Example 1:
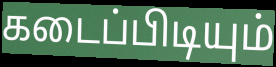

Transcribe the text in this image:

கடைப்பிடியும்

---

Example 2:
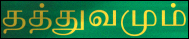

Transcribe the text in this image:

தத்துவமும்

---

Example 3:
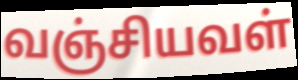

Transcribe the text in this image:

வஞ்சியவள்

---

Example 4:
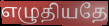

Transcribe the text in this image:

எழுதியதே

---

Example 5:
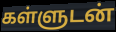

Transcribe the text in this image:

கள்ளுடன்